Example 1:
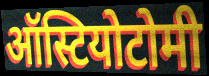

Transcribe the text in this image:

ऑस्टियोटोमी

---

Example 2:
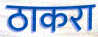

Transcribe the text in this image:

ठाकरा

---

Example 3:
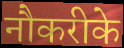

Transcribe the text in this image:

नौकरीके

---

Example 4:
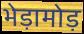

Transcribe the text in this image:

भेड़ामोड़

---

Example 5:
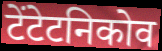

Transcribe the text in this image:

टेंटेटनिकोव